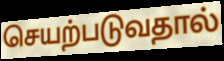
செயற்படுவதால்